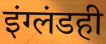
इंग्लंडही